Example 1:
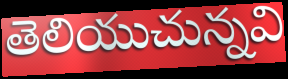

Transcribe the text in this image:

తెలియుచున్నవి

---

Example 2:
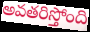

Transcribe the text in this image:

అవతరిస్తోంది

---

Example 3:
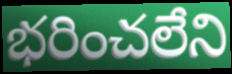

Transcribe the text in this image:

భరించలేని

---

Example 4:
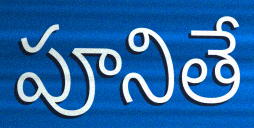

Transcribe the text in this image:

పూనితే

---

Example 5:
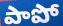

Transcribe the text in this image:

పాపో